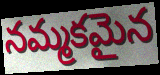
నమ్మకమైన